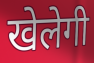
खेलेगी